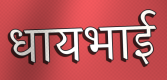
धायभाई